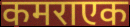
कमराएक